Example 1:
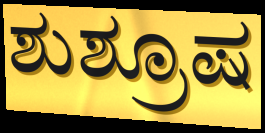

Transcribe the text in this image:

ಶುಶ್ರೂಷ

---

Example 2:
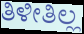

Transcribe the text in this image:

ತಿಳೀತಿಲ್ಲ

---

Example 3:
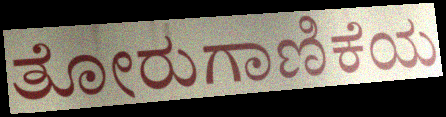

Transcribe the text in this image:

ತೋರುಗಾಣಿಕೆಯ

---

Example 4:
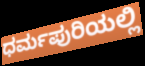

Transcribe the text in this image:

ಧರ್ಮಪುರಿಯಲ್ಲಿ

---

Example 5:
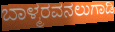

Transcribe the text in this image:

ಬಾಳ್ಮರವನಲುಗಾಡಿ